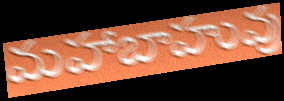
మహాబాహువు